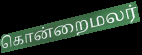
கொன்றைமலர்